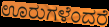
ಊರುಗಳೆಂದರೆ